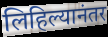
लिहिल्यानंतर